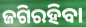
ଜଗିରହିବା